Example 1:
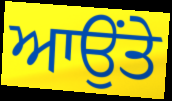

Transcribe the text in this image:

ਆਉਂਤੇ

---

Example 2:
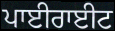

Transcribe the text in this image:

ਪਾਈਰਾਈਟ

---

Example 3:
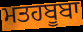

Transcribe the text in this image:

ਮਤਹਬੂਬਾ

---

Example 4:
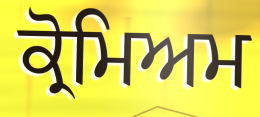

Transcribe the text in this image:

ਕ੍ਰੋਮਿਅਮ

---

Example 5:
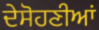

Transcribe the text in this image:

ਦੇਸੋਹਣੀਆਂ